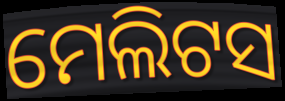
ମେଲିଟସ